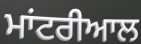
ਮਾਂਟਰੀਆਲ